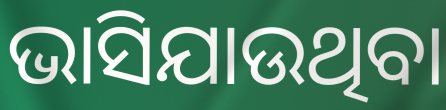
ଭାସିଯାଉଥିବା